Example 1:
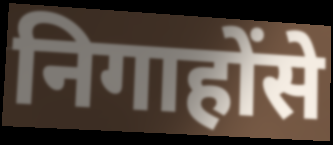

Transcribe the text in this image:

निगाहोंसे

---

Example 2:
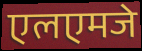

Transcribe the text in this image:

एलएमजे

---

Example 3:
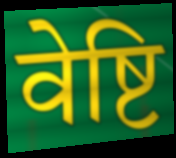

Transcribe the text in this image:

वेष्टि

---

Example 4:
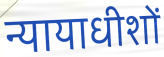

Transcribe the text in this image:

न्यायाधीशों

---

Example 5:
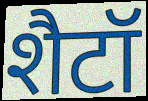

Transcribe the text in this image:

शैटॉ